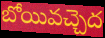
బోయివచ్చెద